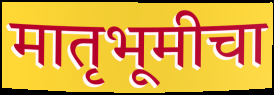
मातृभूमीचा